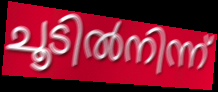
ചൂടിൽനിന്ന്